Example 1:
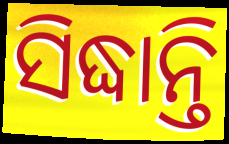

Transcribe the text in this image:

ସିଦ୍ଧାନ୍ତି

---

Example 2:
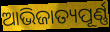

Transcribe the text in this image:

ଆଭିଜାତ୍ୟପୂର୍ଣ୍ଣ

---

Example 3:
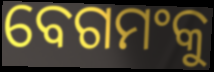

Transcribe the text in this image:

ବେଗମଂକୁ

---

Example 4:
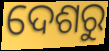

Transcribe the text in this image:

ଦେଶରୁ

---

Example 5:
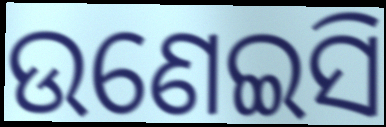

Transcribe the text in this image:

ଉଣେଇସି